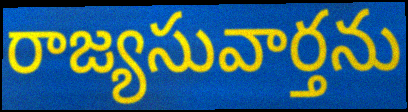
రాజ్యసువార్తను